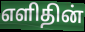
எளிதின்